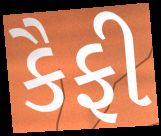
કૈફી